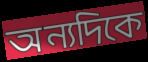
অন্যদিকে